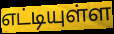
எட்டியுள்ள